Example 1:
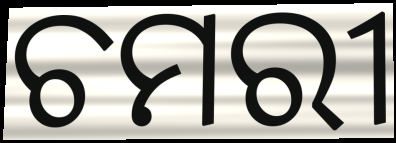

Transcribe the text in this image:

ଚମରୀ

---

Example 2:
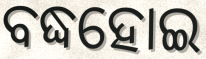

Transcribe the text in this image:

ବଦ୍ଧହୋଇ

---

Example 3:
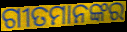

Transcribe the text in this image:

ଗୀତମାନଙ୍କର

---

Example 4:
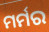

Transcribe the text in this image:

ମର୍ମର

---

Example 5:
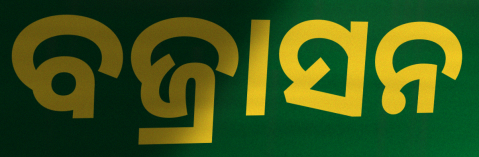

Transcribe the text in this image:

ବଜ୍ରାସନ